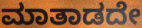
ಮಾತಾಡದೇ